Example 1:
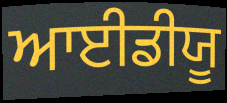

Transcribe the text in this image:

ਆਈਡੀਯੂ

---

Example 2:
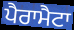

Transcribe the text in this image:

ਪੈਰਾਮੈਟਾ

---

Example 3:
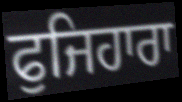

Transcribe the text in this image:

ਫੁਜਿਹਾਰਾ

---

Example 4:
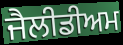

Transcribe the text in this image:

ਜੈਲੀਡੀਅਮ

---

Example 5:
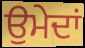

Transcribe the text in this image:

ਉਮੇਦਾਂ